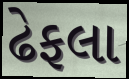
ઢેફલા